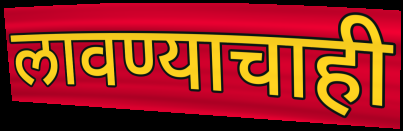
लावण्याचाही